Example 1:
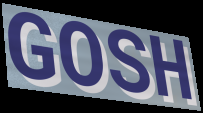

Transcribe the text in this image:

GOSH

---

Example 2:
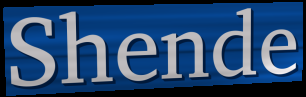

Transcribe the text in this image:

Shende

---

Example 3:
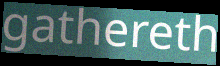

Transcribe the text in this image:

gathereth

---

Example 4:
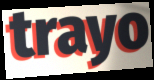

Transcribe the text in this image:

trayo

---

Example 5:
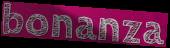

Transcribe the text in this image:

bonanza